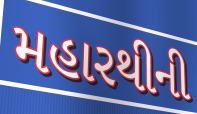
મહારથીની